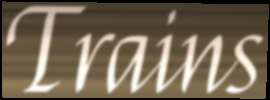
Trains